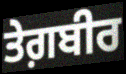
ਤੇਗ਼ਬੀਰ